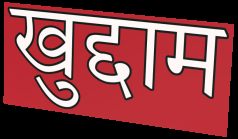
खुद्दाम